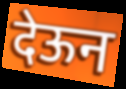
देऊन